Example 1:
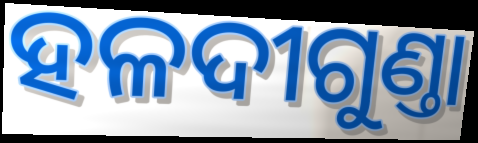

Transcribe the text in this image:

ହଳଦୀଗୁଣ୍ତା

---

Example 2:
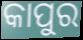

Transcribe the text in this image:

କାପୁର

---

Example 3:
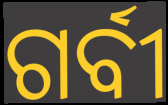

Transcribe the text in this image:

ଗର୍ବୀ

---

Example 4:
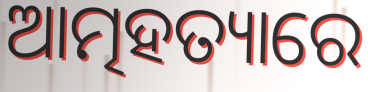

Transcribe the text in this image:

ଆତ୍ମହତ୍ୟାରେ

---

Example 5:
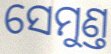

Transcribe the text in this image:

ସେମୁଣ୍ତ